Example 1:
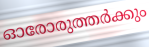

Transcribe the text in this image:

ഓരോരുത്തർക്കും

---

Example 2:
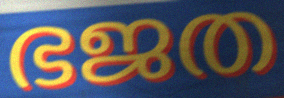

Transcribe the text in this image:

ഭജത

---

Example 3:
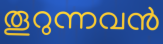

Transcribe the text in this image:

തൂറുന്നവൻ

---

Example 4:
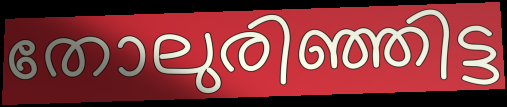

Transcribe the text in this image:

തോലുരിഞ്ഞിട്ട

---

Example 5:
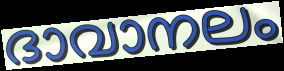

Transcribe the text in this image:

ദാവാനലം